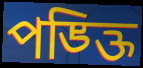
পঙ্ক্তি